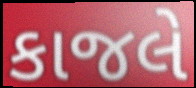
કાજલે